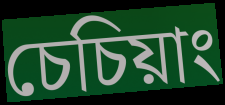
চেচিয়াং